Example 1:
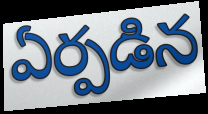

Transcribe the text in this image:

ఏర్పడిన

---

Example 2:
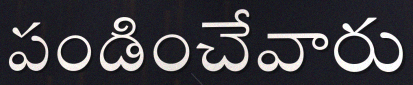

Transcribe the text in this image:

పండించేవారు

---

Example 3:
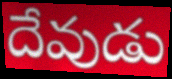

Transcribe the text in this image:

దేవుడు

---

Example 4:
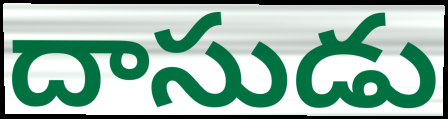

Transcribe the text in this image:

దాసుడు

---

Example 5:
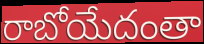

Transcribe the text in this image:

రాబోయేదంతా